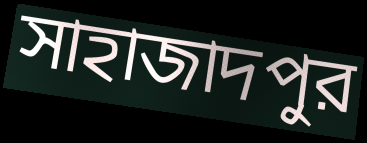
সাহাজাদপুর